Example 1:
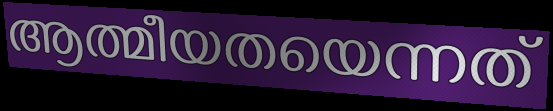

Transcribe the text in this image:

ആത്മീയതയെന്നത്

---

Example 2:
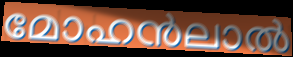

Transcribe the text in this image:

മോഹൻലാൽ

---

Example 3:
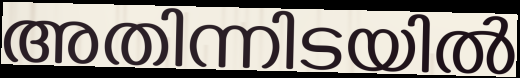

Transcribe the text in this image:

അതിന്നിടയിൽ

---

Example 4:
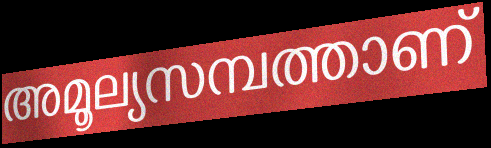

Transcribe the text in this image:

അമൂല്യസമ്പത്താണ്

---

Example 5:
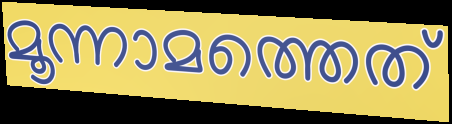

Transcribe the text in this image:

മൂന്നാമത്തെത്